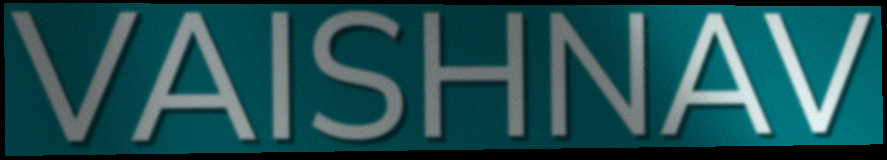
VAISHNAV